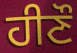
ਹੀਣੌ